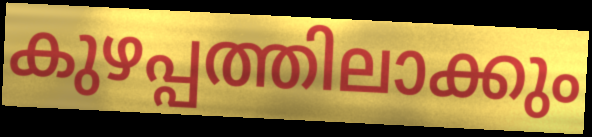
കുഴപ്പത്തിലാക്കും